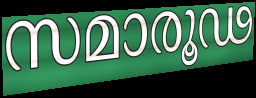
സമാരൂഢ